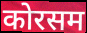
कोरसम